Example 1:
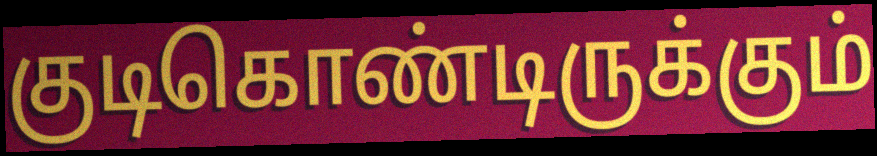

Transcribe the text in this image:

குடிகொண்டிருக்கும்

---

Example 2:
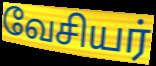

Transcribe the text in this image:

வேசியர்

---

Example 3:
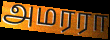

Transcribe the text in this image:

அமரரா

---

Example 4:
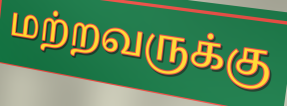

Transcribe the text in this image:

மற்றவருக்கு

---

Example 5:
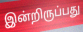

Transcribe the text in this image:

இன்றிருப்பது